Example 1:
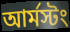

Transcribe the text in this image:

আর্মস্টং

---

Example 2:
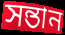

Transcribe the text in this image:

সন্তান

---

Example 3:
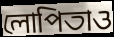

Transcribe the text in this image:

লোপিতাও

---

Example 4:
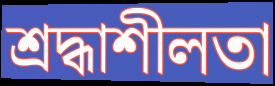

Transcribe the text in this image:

শ্রদ্ধাশীলতা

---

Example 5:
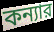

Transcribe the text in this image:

কন্যার